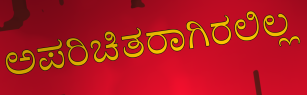
ಅಪರಿಚಿತರಾಗಿರಲಿಲ್ಲ